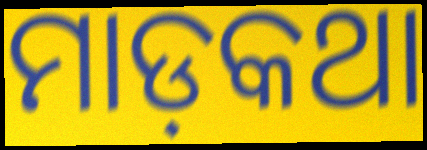
ମାଡ଼କଥା